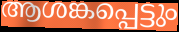
ആശങ്കപ്പെട്ടും